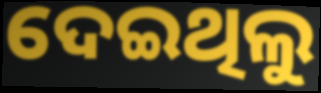
ଦେଇଥିଲୁ